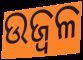
ଉଜ୍ବଳ